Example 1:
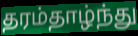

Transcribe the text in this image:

தரம்தாழ்ந்து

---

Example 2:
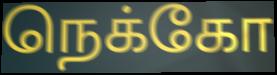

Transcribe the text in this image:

நெக்கோ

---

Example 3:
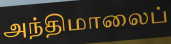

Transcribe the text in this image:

அந்திமாலைப்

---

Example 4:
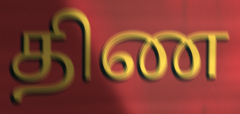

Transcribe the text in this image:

திண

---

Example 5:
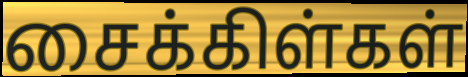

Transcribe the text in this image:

சைக்கிள்கள்